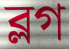
ব্লগ